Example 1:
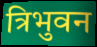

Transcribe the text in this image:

त्रिभुवन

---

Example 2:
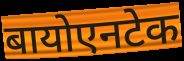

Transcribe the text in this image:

बायोएनटेक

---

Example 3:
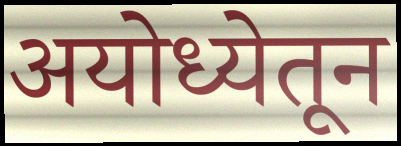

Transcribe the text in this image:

अयोध्येतून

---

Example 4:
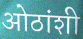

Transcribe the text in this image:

ओठांशी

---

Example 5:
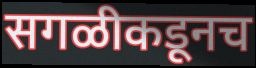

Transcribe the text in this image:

सगळीकडूनच